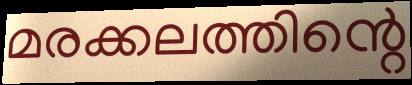
മരക്കലത്തിന്റെ